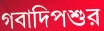
গবাদিপশুর